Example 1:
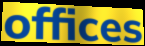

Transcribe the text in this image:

offices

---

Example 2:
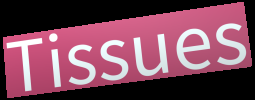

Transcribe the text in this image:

Tissues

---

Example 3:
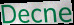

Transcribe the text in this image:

Decne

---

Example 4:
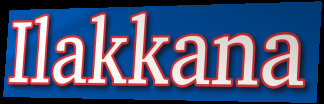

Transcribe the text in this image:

Ilakkana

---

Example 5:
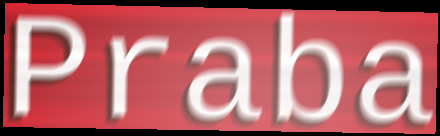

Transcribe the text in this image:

Praba